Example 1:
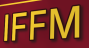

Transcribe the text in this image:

IFFM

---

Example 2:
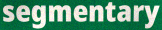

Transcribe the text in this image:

segmentary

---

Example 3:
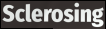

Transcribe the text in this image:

Sclerosing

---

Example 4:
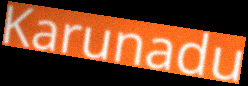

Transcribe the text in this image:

Karunadu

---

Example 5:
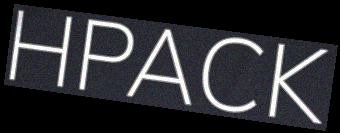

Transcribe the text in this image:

HPACK